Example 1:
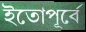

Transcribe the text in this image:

ইতোপূর্বে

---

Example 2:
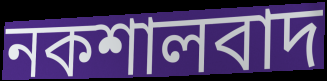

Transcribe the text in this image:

নকশালবাদ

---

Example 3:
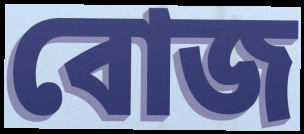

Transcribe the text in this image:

বোজ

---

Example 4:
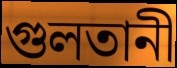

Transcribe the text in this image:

গুলতানী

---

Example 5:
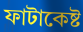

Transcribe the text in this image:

ফাটাকেষ্ট